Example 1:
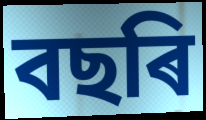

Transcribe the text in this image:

বছৰি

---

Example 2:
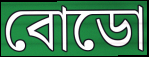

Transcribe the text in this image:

বোডো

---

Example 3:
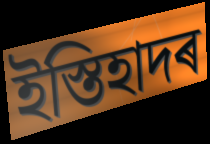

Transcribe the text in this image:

ইস্তিহাদৰ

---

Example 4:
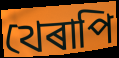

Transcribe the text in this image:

থেৰাপি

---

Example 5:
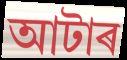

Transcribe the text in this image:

আটাৰ